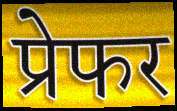
प्रेफर